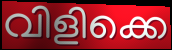
വിളിക്കെ